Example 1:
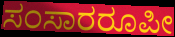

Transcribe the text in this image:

ಸಂಸಾರರೂಪೀ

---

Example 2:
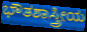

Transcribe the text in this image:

ಭೌತಶಾಸ್ತ್ರೀಯ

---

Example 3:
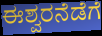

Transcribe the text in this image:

ಈಶ್ವರನೆಡೆಗೆ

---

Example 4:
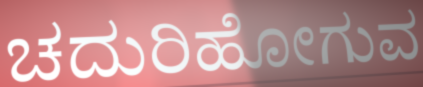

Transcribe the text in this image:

ಚದುರಿಹೋಗುವ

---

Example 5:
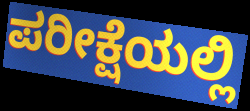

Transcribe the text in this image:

ಪರೀಕ್ಷೆಯಲ್ಲಿ